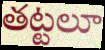
తట్టలూ